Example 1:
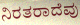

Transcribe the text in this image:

ನಿರತರಾದೆವು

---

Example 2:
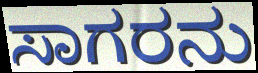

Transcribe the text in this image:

ಸಾಗರನು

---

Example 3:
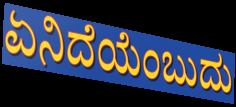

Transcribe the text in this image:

ಏನಿದೆಯೆಂಬುದು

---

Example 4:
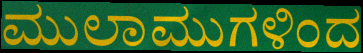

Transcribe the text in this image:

ಮುಲಾಮುಗಳಿಂದ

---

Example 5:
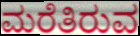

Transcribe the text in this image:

ಮರೆತಿರುವ